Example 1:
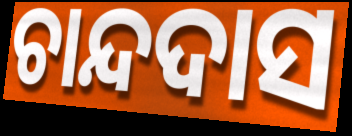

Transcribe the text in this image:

ଚାନ୍ଦଦାସ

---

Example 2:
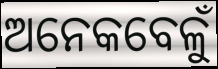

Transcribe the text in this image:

ଅନେକବେଳୁଁ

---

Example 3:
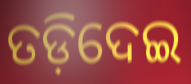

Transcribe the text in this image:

ତଡ଼ିଦେଇ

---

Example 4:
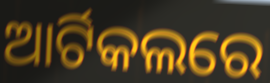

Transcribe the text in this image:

ଆର୍ଟିକଲରେ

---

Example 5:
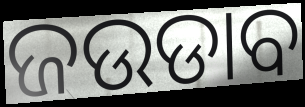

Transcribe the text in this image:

ଜଉଡାବ